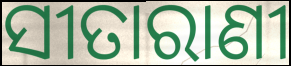
ସୀତାରାଣୀ